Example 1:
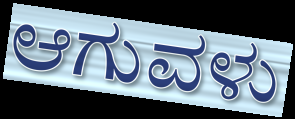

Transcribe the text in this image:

ಆಗುವಳು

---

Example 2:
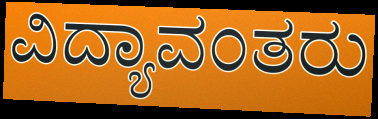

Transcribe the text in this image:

ವಿದ್ಯಾವಂತರು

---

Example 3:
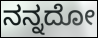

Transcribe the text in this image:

ನನ್ನದೋ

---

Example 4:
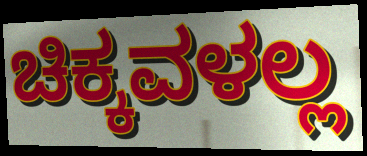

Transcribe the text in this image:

ಚಿಕ್ಕವಳಲ್ಲ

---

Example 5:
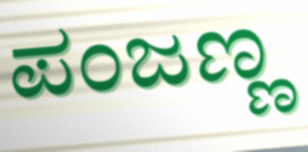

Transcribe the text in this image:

ಪಂಜಣ್ಣ